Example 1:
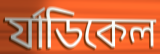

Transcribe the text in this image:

র্যাডিকেল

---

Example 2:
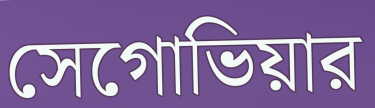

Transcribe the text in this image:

সেগোভিয়ার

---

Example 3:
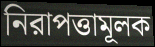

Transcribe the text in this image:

নিরাপত্তামূলক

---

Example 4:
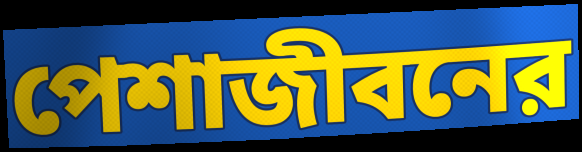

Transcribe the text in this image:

পেশাজীবনের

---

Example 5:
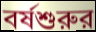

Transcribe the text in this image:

বর্ষশুরুর